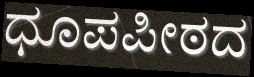
ಧೂಪಪೀಠದ